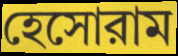
হেসোরাম